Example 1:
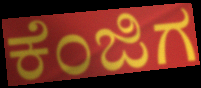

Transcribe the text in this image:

ಕೆಂಜಿಗ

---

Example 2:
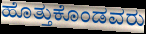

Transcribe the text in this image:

ಹೊತ್ತುಕೊಂಡವರು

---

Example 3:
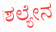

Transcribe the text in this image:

ಶಲ್ಯೇನ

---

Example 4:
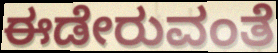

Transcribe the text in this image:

ಈಡೇರುವಂತೆ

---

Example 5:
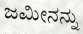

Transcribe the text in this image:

ಜಮೀನನ್ನು